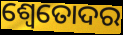
ଶ୍ୱେତୋଦର